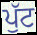
ਪੁੱਟ